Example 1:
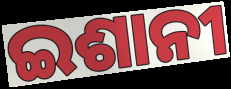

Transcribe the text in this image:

ଇଶାନୀ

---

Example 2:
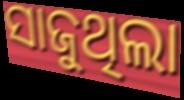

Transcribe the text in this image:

ସାଜୁଥିଲା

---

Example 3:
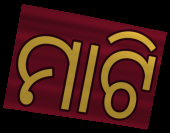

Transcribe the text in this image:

ମାଟି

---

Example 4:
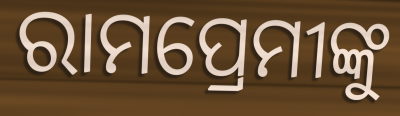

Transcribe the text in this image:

ରାମପ୍ରେମୀଙ୍କୁ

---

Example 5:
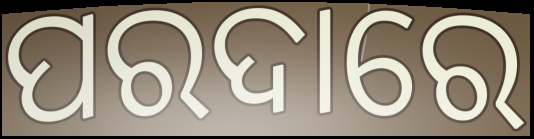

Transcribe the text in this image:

ପରଦାରେ